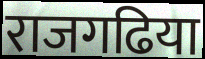
राजगढिया